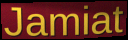
Jamiat